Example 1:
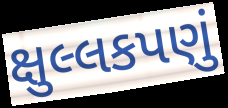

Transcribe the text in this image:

ક્ષુલ્લકપણું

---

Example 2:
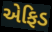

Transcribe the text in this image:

એફિડ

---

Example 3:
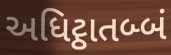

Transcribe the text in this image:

અધિટ્ઠાતબ્બં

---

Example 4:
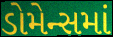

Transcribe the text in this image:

ડોમેન્સમાં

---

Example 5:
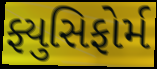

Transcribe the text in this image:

ફ્યુસિફોર્મ